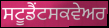
ਸਟੂਡੈਂਟਸਕਵੇਅਰ